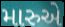
મારુએ